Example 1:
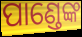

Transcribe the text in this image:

ପାଣ୍ଡେଙ୍କ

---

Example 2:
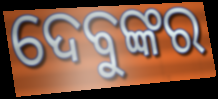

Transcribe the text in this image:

ଦେବୁଙ୍କର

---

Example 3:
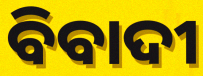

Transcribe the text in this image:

ବିବାଦୀ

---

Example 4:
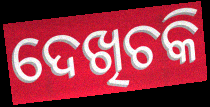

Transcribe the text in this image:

ଦେଖିଚକି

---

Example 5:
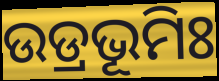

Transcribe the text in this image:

ଉଡ୍ରଭୂମିଃ